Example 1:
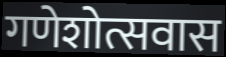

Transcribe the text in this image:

गणेशोत्सवास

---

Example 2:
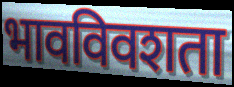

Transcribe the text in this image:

भावविवशता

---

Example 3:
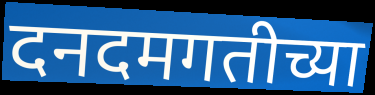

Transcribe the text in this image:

दनदमगतीच्या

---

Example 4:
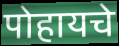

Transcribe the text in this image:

पोहायचे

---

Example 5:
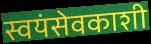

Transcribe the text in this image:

स्वयंसेवकाशी